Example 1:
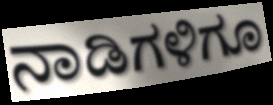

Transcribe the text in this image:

ನಾಡಿಗಳಿಗೂ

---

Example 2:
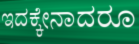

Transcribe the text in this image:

ಇದಕ್ಕೇನಾದರೂ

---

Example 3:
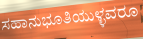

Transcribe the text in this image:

ಸಹಾನುಭೂತಿಯುಳ್ಳವರೂ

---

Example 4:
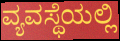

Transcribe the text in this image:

ವ್ಯವಸ್ಥೆಯಲ್ಲಿ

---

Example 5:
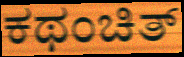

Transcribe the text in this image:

ಕಥಂಚಿತ್